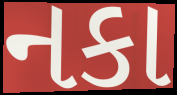
નકા